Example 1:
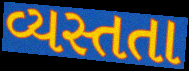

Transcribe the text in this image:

વ્યસ્તતા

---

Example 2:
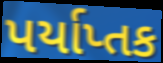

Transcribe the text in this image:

પર્યાપ્તક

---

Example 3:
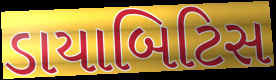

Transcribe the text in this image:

ડાયાબિટિસ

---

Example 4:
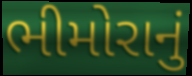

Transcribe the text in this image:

ભીમોરાનું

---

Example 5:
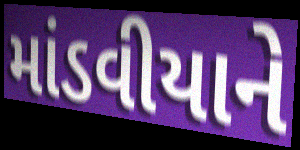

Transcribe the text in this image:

માંડવીયાને